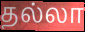
தல்லா